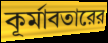
কূর্মাবতারের